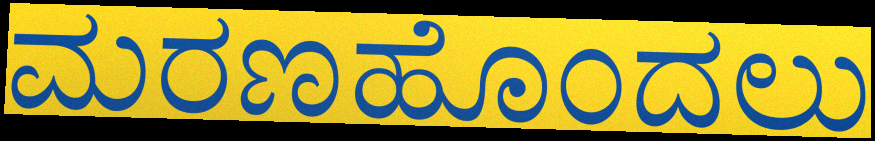
ಮರಣಹೊಂದಲು